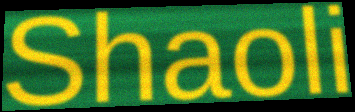
Shaoli